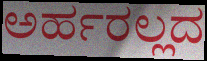
ಅರ್ಹರಲ್ಲದ